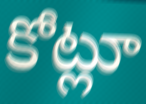
కోట్లూ